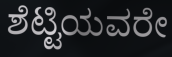
ಶೆಟ್ಟಿಯವರೇ